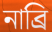
নাব্রি